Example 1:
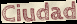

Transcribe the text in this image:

Ciudad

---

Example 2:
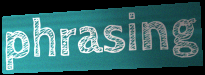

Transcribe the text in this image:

phrasing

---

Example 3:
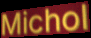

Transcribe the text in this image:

Michol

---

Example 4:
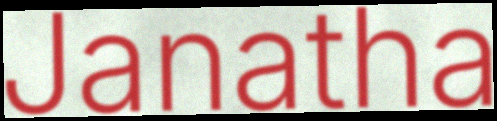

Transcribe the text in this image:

Janatha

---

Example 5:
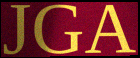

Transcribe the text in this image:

JGA